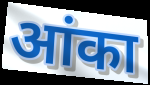
आंका